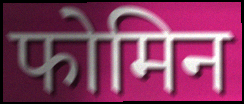
फोमिन